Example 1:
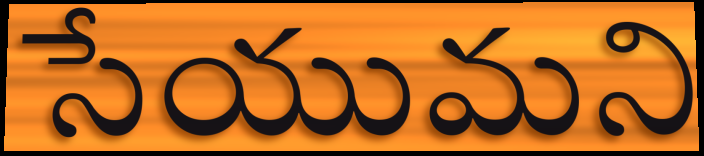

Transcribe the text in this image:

సేయుమని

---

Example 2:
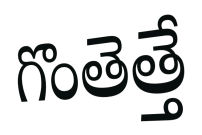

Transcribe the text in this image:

గొంతెత్తే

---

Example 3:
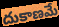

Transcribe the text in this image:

దుకాణమే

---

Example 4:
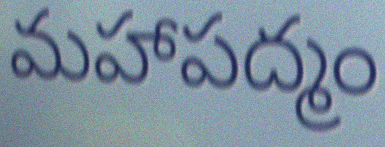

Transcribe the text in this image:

మహాపద్మం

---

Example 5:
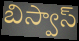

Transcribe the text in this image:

బిస్వాస్